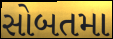
સોબતમા